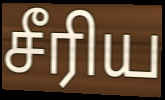
சீரிய